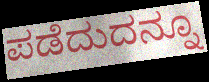
ಪಡೆದುದನ್ನೂ